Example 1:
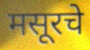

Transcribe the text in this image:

मसूरचे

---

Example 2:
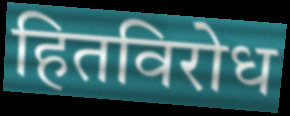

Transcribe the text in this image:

हितविरोध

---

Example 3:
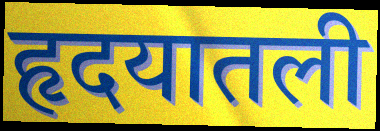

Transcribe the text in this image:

हृदयातली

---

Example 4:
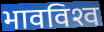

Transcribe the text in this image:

भावविश्व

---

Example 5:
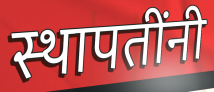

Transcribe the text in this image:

स्थापतींनी